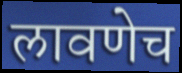
लावणेच